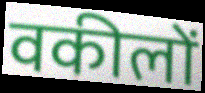
वकीलों